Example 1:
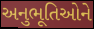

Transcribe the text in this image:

અનુભૂતિઓને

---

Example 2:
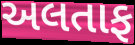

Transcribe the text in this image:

અલતાફ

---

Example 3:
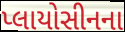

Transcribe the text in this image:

પ્લાયોસીનના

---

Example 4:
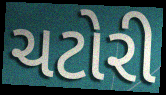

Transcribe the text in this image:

ચટોરી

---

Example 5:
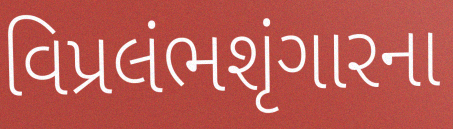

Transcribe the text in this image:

વિપ્રલંભશૃંગારના